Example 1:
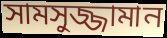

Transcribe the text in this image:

সামসুজ্জামান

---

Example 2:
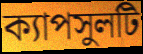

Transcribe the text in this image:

ক্যাপসুলটি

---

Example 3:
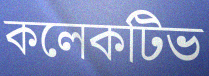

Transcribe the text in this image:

কলেকটিভ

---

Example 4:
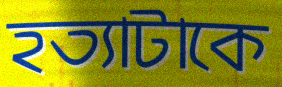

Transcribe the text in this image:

হত্যাটাকে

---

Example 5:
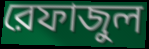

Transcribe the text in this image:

রেফাজুল